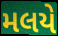
મલયે